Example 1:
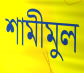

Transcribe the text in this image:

শামীমুল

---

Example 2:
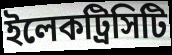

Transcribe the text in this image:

ইলেকট্রিসিটি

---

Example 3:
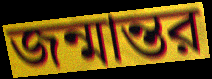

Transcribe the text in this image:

জন্মান্তর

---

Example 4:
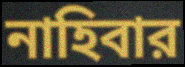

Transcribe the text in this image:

নাহিবার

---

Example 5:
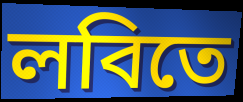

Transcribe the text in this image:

লবিতে